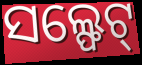
ସଲ୍ଫେଟ୍